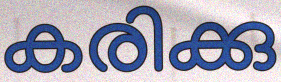
കരിക്കു